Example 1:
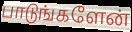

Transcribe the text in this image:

பாடுங்களேன்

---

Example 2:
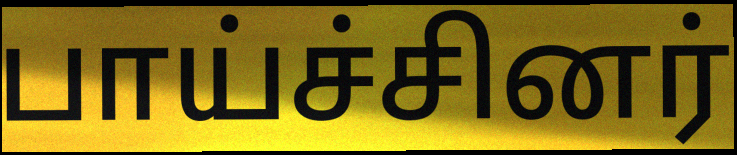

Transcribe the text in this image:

பாய்ச்சினர்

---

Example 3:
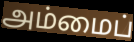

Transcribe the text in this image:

அம்மைப்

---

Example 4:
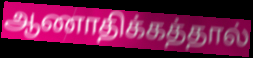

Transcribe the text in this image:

ஆணாதிக்கத்தால்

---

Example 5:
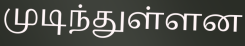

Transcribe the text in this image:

முடிந்துள்ளன